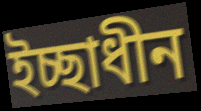
ইচ্ছাধীন